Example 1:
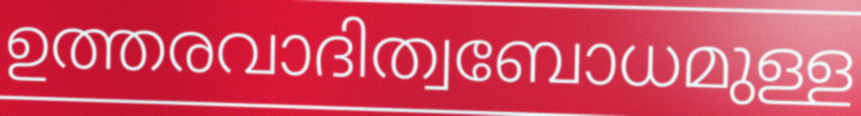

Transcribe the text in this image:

ഉത്തരവാദിത്വബോധമുള്ള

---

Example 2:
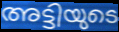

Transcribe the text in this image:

അട്ടിയുടെ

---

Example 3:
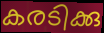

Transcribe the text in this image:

കരടിക്കു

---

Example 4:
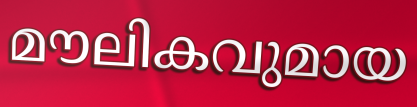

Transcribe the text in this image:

മൗലികവുമായ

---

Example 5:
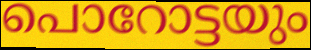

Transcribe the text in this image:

പൊറോട്ടയും